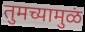
तुमच्यामुळं